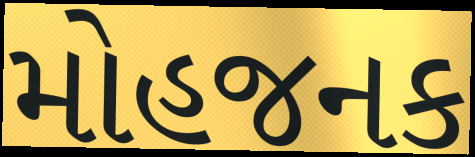
મોહજનક